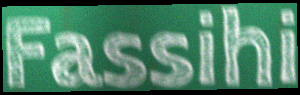
Fassihi